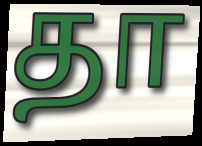
தா